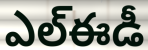
ఎల్ఈడీ